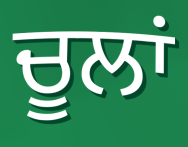
ਚੂਲਾਂ